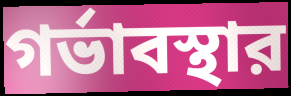
গর্ভাবস্থার